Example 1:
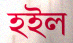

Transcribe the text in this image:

হইল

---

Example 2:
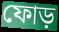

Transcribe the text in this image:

ফোড়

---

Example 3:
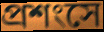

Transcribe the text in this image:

প্রশংসে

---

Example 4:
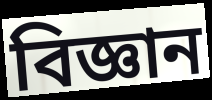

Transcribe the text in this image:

বিজ্ঞান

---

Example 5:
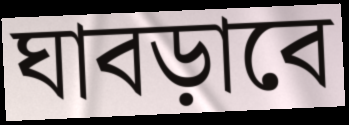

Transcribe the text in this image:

ঘাবড়াবে